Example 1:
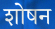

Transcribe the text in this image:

शोषन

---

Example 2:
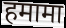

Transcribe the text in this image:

हमामा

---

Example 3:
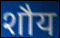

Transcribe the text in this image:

शौय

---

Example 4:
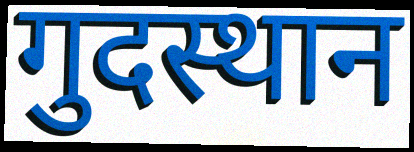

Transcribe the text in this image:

गुदस्थान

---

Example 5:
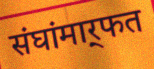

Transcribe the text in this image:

संघांमार्फत